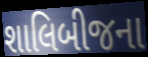
શાલિબીજના